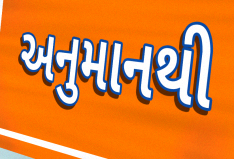
અનુમાનથી